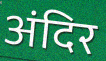
अंदिर